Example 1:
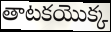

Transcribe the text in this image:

తాటకయొక్క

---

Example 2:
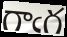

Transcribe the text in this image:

గాఁగ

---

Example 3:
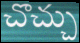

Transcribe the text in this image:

చొచ్చు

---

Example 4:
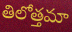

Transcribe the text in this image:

తిలోత్తమా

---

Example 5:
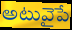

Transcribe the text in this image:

అటువైపే